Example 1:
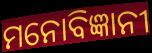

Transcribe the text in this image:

ମନୋବିଜ୍ଞାନୀ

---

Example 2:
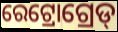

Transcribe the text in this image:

ରେଟ୍ରୋଗ୍ରେଡ୍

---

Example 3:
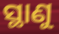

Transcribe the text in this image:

ସ୍ଥାଣୁ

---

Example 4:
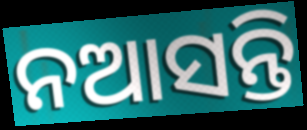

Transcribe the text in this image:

ନଆସନ୍ତି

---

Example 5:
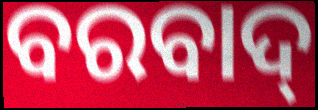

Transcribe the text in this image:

ବରବାଦ୍